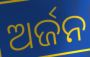
ଅର୍ଜନ